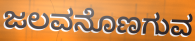
ಜಲವನೊಣಗುವ